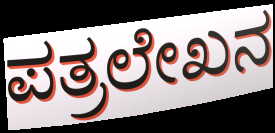
ಪತ್ರಲೇಖನ